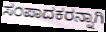
ಸಂಪಾದಕರನ್ನಾಗಿ